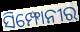
ସିମ୍ଫୋନୀର